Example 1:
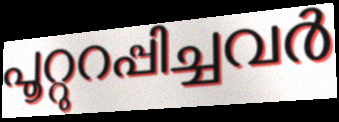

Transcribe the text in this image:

പൂറ്റുറപ്പിച്ചവർ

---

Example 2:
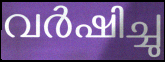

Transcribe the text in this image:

വർഷിച്ചു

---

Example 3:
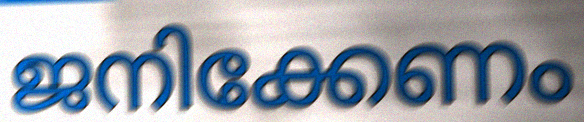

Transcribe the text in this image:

ജനിക്കേണം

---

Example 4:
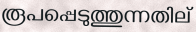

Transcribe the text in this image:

രൂപപ്പെടുത്തുന്നതില്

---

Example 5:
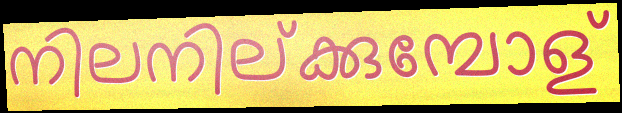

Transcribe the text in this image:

നിലനില്ക്കുമ്പോള്